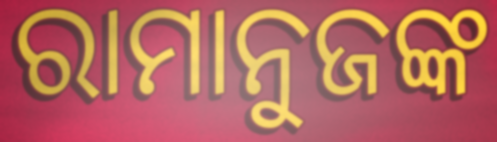
ରାମାନୁଜଙ୍କ